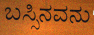
ಬಸ್ಸಿನವನು